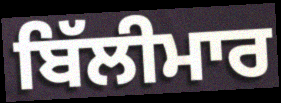
ਬਿੱਲੀਮਾਰ